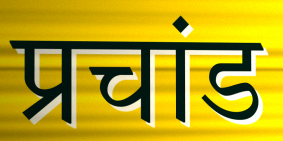
प्रचांड